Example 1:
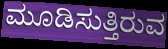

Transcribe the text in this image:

ಮೂಡಿಸುತ್ತಿರುವ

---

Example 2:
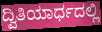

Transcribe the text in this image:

ದ್ವಿತಿಯಾರ್ಧದಲ್ಲಿ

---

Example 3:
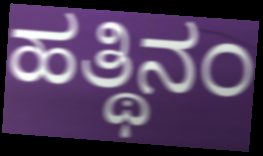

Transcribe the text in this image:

ಹತ್ಥಿನಂ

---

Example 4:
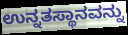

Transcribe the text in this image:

ಉನ್ನತಸ್ಥಾನವನ್ನು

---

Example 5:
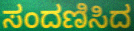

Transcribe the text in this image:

ಸಂದಣಿಸಿದ